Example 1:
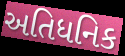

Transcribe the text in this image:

અતિધનિક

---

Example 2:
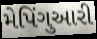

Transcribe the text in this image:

મેપિંગુઆરી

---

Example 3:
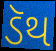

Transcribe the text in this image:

ડૅથ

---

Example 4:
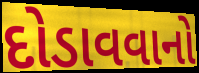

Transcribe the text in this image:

દોડાવવાનો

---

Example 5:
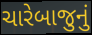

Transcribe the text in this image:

ચારેબાજુનું